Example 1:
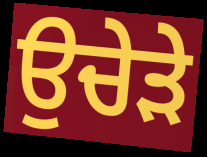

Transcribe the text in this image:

ਉਚੇੜੇ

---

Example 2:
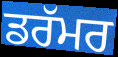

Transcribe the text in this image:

ਡਰੱਮਰ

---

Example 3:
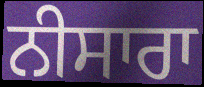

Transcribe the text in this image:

ਨੀਸਾਰਾ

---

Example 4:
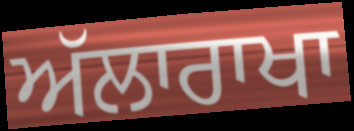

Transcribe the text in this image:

ਅੱਲਾਰਾਖਾ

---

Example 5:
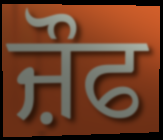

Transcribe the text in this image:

ਜ਼ੌਫ